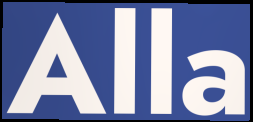
Alla